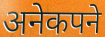
अनेकपने